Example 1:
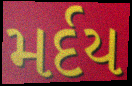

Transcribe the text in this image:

મર્દય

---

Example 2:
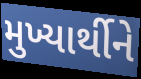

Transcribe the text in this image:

મુખ્યાર્થીને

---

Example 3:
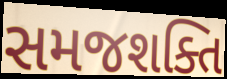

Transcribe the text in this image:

સમજશક્તિ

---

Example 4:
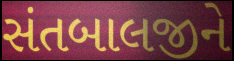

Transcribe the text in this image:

સંતબાલજીને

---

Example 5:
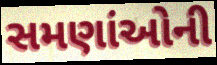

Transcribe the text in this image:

સમણાંઓની